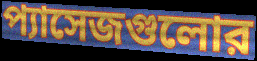
প্যাসেজগুলোর